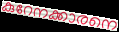
കുറേനക്കാരനെ